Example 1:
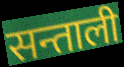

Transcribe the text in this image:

सन्ताली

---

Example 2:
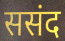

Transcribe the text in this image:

ससंद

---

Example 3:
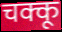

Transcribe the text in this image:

चक्कू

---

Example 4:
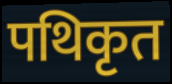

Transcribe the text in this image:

पथिकृत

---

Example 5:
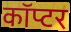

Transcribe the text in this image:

कॉप्टर